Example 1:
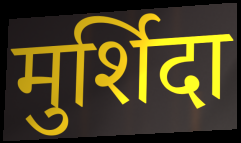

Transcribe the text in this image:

मुर्शिदा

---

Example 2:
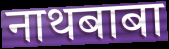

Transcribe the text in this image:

नाथबाबा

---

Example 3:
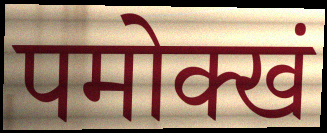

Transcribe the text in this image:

पमोक्खं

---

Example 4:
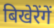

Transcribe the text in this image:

बिखेरेंगें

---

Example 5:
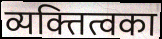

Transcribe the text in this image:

व्यक्तित्वका